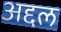
अद्दल